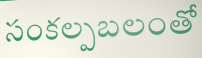
సంకల్పబలంతో